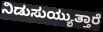
ನಿಡುಸುಯ್ಯುತ್ತಾರೆ